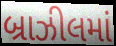
બ્રાઝીલમાં